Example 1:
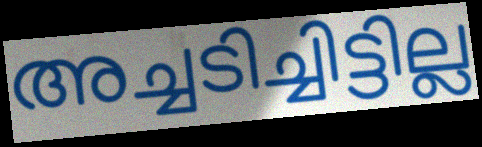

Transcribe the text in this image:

അച്ചടിച്ചിട്ടില്ല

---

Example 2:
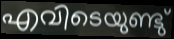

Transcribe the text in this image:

എവിടെയുണ്ടു്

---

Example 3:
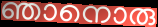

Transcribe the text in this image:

ഞാനൊരു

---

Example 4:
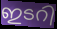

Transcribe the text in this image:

ഇടറി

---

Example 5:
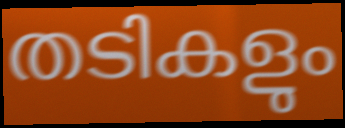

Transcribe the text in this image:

തടികളും